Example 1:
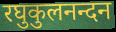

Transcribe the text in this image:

रघुकुलनन्दन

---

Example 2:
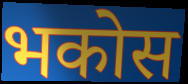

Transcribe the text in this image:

भकोस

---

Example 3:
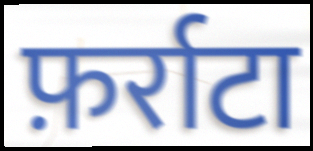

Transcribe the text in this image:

फ़र्राटा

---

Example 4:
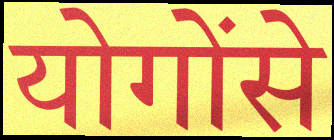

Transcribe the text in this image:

योगोंसे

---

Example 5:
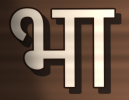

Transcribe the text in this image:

भा